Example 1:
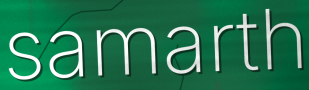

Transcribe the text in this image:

samarth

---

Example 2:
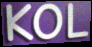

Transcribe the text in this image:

KOL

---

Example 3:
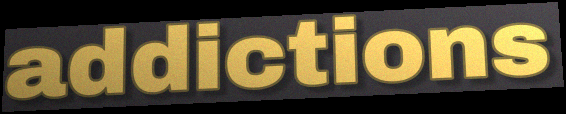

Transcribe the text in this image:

addictions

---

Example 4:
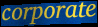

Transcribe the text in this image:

corporate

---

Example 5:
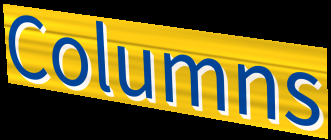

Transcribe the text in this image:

Columns